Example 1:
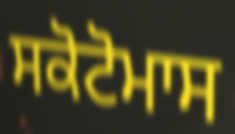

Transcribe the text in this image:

ਸਕੋਟੋਮਾਸ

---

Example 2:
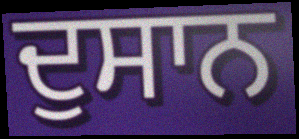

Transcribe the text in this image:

ਦੁਸਾਨ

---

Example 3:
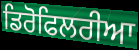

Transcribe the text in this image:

ਡਿਰੋਫਿਲਰੀਆ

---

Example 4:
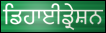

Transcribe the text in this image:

ਡਿਹਾਈਡ੍ਰੇਸ਼ਨ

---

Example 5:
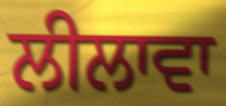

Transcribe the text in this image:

ਲੀਲਾਵਾ